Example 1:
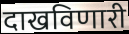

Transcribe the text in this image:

दाखविणारी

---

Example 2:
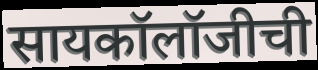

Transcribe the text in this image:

सायकॉलॉजीची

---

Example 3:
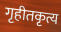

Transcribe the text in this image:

गृहीतकृत्य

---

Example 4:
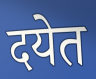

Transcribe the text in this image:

दयेत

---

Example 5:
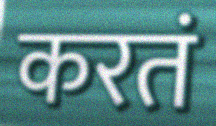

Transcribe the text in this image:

करतं